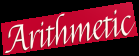
Arithmetic